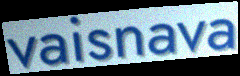
vaisnava